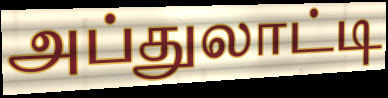
அப்துலாட்டி